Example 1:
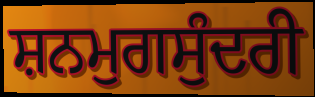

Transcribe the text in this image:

ਸ਼ਨਮੁਗਸੁੰਦਰੀ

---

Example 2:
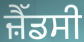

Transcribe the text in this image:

ਜ਼ੈੱਡਸੀ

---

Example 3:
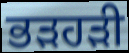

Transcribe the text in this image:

ਭੜਹੜੀ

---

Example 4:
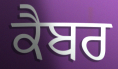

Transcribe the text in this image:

ਕੈਬਰ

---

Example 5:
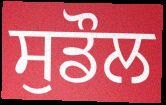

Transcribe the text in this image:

ਸੁਡੌਲ